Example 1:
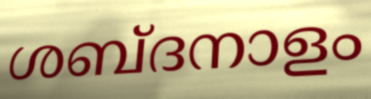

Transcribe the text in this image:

ശബ്ദനാളം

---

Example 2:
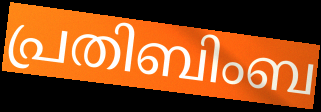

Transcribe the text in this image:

പ്രതിബിംബ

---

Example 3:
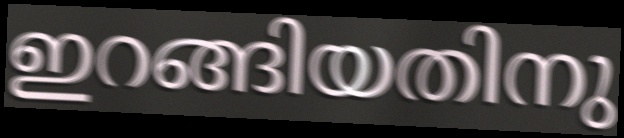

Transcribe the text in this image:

ഇറങ്ങിയതിനു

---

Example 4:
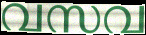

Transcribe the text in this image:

വസവ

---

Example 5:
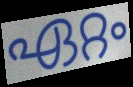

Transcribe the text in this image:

ഏറ്റം